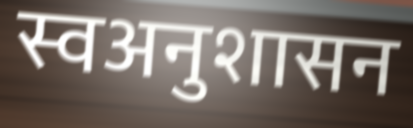
स्वअनुशासन